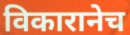
विकारानेच